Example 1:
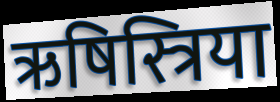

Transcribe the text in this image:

ऋषिस्त्रिया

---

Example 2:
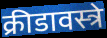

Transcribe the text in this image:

क्रीडावस्त्रे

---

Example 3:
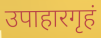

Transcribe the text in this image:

उपाहारगृहं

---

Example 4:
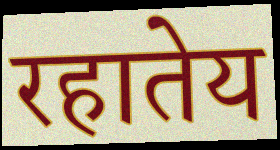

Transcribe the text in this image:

रहातेय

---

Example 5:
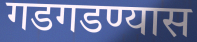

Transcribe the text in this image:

गडगडण्यास